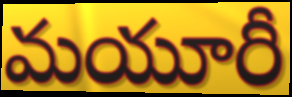
మయూరీ